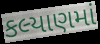
કલ્યાણમાં